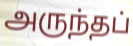
அருந்தப்